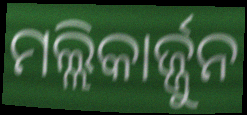
ମଲ୍ଲିକାର୍ଜ୍ଜୁନ